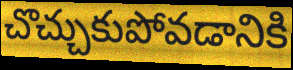
చొచ్చుకుపోవడానికి